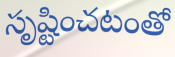
సృష్టించటంతో